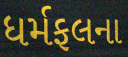
ધર્મફલના